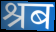
श्रब